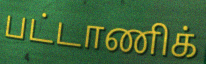
பட்டாணிக்